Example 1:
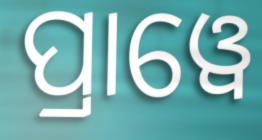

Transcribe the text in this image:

ପ୍ରାୱେ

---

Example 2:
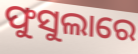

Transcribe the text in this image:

ଫୁସୁଲାରେ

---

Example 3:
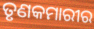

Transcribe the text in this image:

ତୃଣକମାରୀର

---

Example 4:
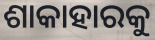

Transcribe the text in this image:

ଶାକାହାରକୁ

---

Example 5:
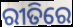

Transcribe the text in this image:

ରୀତିରେ